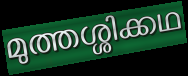
മുത്തശ്ശിക്കഥ